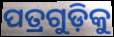
ପତ୍ରଗୁଡ଼ିକୁ